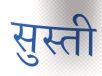
सुस्ती